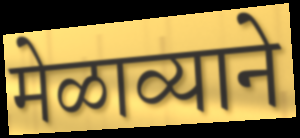
मेळाव्याने